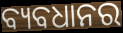
ବ୍ୟବଧାନର